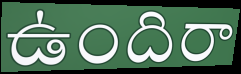
ఉందిరా